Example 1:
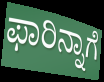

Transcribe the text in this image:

ಫಾರಿನ್ನಾಗೆ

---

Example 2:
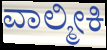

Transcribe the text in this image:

ವಾಲ್ಮೀಕಿ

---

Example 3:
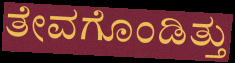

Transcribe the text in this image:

ತೇವಗೊಂಡಿತ್ತು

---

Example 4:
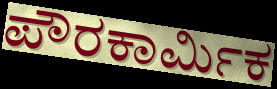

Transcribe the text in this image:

ಪೌರಕಾರ್ಮಿಕ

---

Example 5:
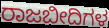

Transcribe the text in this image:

ರಾಜಬೀದಿಗಳ